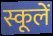
स्कूलें